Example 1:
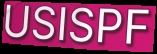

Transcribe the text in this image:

USISPF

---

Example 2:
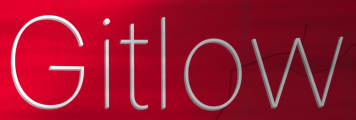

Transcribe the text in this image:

Gitlow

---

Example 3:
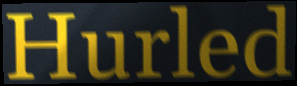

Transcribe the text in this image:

Hurled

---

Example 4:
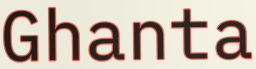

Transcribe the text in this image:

Ghanta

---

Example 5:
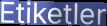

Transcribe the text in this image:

Etiketler